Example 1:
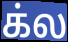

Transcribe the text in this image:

க்ல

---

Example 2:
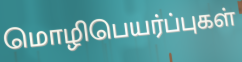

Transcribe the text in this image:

மொழிபெயர்ப்புகள்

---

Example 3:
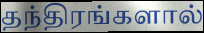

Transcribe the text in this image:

தந்திரங்களால்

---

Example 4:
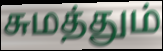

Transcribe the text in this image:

சுமத்தும்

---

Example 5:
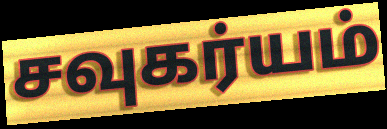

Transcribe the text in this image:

சவுகர்யம்